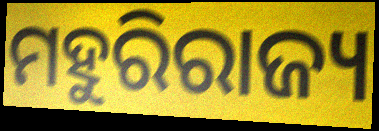
ମହୁରିରାଜ୍ୟ